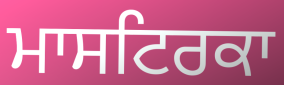
ਮਾਸਟਿਰਕਾ